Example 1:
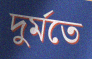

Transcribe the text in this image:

দুর্মতে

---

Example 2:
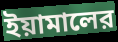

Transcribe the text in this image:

ইয়ামালের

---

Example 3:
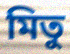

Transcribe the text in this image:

মিতু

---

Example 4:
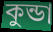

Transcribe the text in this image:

কুন্ডা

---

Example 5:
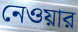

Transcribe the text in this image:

নেওয়ার